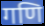
गणि